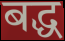
बद्ध